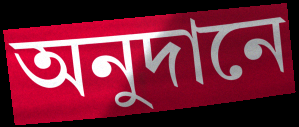
অনুদানে